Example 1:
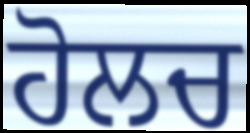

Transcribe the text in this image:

ਹੋਲਚ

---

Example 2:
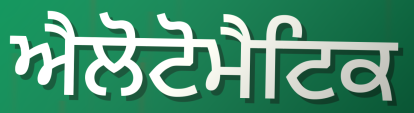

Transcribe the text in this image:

ਐਲੋਟੋਮੈਟਿਕ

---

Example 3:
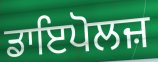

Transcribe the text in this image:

ਡਾਇਪੋਲਜ਼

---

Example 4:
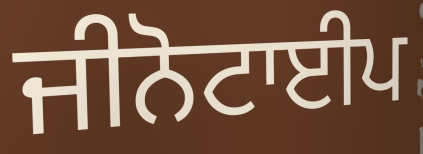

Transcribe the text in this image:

ਜੀਨੋਟਾਈਪ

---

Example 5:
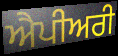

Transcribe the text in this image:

ਐਪੀਅਰੀ